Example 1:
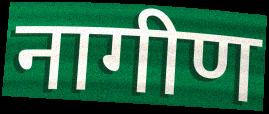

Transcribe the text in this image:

नागीण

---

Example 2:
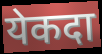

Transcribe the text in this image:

येकदा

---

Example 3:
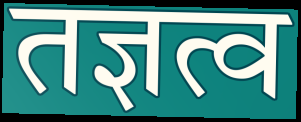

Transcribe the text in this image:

तज्ञत्व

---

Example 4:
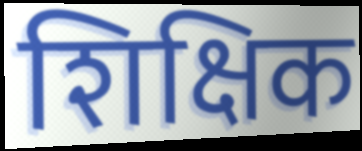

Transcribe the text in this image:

शिक्षिक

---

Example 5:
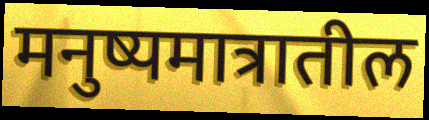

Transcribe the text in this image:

मनुष्यमात्रातील